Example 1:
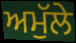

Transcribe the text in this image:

ਅਮੁੱਲੇ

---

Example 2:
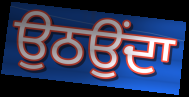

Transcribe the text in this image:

ਉਠਉਂਦਾ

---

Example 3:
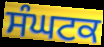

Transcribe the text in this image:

ਸੰਘਟਕ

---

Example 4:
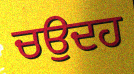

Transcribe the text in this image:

ਚਉਦਹ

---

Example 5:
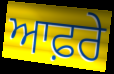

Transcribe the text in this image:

ਆਫ਼ਰੇ